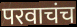
परवाचंच